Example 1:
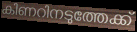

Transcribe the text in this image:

കിണറിനടുത്തേക്ക്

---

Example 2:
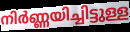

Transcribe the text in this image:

നിർണ്ണയിച്ചിട്ടുള്ള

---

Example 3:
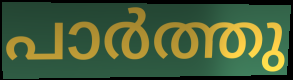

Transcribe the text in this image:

പാർത്തു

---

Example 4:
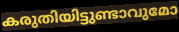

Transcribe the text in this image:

കരുതിയിട്ടുണ്ടാവുമോ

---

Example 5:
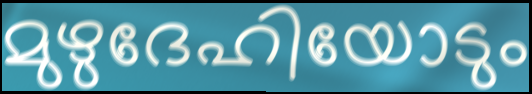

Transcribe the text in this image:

മുഴുദേഹിയോടും